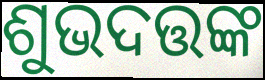
ଶୁଭଦତ୍ତଙ୍କ